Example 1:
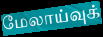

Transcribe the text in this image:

மேலாய்வுக்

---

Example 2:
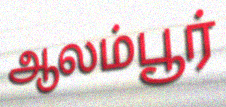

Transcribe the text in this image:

ஆலம்பூர்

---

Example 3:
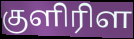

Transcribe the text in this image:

குளிரிள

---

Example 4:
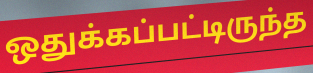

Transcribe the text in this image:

ஒதுக்கப்பட்டிருந்த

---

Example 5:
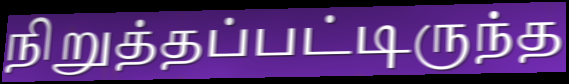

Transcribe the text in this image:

நிறுத்தப்பட்டிருந்த